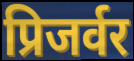
प्रिजर्वर